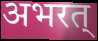
अभरत्